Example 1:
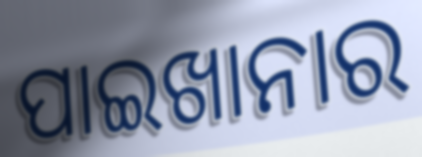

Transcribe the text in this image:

ପାଇଖାନାର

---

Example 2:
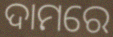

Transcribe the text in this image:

ଦାମରେ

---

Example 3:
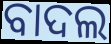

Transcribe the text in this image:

ବାଦଲ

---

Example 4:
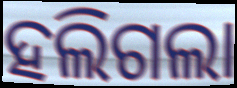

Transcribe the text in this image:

ହଲିଗଲା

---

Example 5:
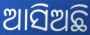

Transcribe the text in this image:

ଆସିଅଛି